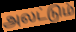
அலட்டும்